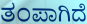
ತಂಪಾಗಿದೆ